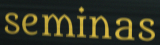
seminas